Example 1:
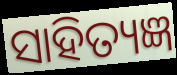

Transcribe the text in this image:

ସାହିତ୍ୟଜ୍ଞ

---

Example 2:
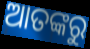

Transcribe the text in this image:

ଆତଙ୍କରୁ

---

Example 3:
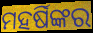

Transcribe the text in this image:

ମହର୍ଷିଙ୍କର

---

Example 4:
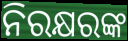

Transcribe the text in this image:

ନିରକ୍ଷରଙ୍କ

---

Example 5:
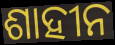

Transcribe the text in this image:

ଶାହୀନ